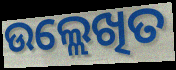
ଉଲ୍ଲେଖିତ